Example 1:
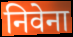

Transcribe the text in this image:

निवेना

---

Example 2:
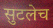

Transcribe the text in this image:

सुटलेच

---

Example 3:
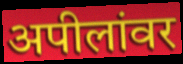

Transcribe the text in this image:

अपीलांवर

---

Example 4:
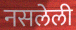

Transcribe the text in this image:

नसलेली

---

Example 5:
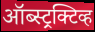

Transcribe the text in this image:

ऑब्स्ट्रक्टिव्ह